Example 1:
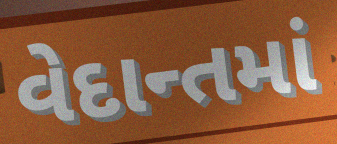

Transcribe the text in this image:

વેદાન્તમાં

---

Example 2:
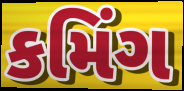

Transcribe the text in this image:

કમિંગ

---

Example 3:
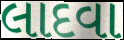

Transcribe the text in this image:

લાદવા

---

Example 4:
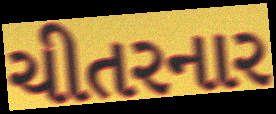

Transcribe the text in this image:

ચીતરનાર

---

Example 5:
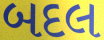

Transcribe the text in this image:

બદલ